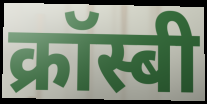
क्रॉस्बी